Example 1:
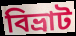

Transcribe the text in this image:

বিভ্রাট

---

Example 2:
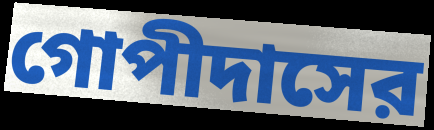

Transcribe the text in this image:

গোপীদাসের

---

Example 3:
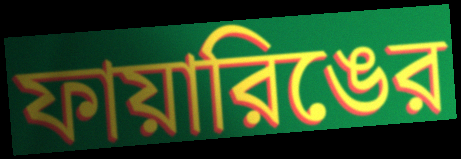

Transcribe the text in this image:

ফায়ারিঙের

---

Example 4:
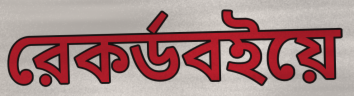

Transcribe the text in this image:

রেকর্ডবইয়ে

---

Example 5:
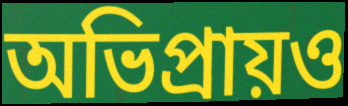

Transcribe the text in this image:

অভিপ্রায়ও